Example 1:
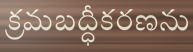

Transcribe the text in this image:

క్రమబద్ధీకరణను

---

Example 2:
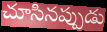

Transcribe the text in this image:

చూసినప్పుడు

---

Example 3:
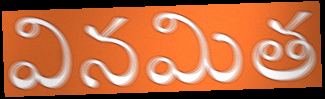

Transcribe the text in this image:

వినమిత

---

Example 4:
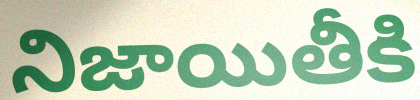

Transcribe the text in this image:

నిజాయితీకి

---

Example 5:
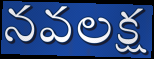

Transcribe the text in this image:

నవలక్ష